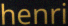
henri